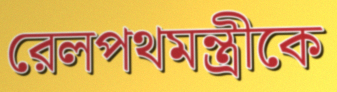
রেলপথমন্ত্রীকে